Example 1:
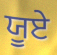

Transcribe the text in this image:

ਯੂਏ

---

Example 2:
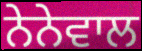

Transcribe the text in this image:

ਨੇਨੇਵਾਲ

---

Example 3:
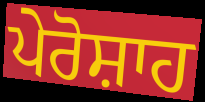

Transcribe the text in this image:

ਪੇਰੋਸ਼ਾਹ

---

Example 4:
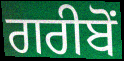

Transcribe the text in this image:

ਗਰੀਬੋਂ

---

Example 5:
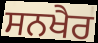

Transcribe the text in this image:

ਸਨਖੈਰ